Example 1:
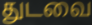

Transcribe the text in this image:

துடவை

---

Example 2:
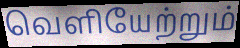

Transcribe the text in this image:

வெளியேற்றும்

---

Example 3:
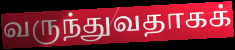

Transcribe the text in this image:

வருந்துவதாகக்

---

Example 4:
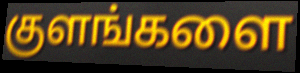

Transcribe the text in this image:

குளங்களை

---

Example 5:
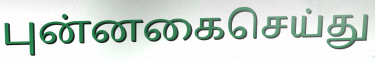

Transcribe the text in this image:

புன்னகைசெய்து